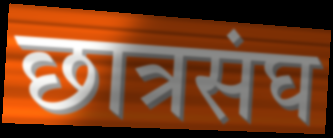
छात्रसंघ